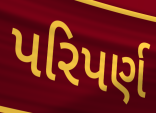
પરિપર્ણ